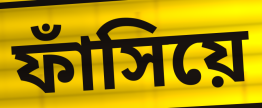
ফাঁসিয়ে